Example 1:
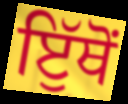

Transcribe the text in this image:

ਇੁੱਥੋਂ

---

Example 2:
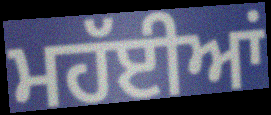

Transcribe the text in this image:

ਮਹੱਈਆਂ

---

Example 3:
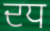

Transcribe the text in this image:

ਦਧ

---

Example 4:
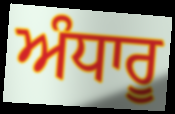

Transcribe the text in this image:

ਅੰਧਾਰੂ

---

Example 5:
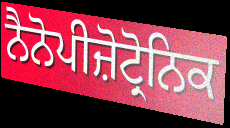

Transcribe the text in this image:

ਨੈਨੋਪੀਜ਼ੋਟ੍ਰੋਨਿਕ